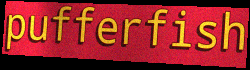
pufferfish